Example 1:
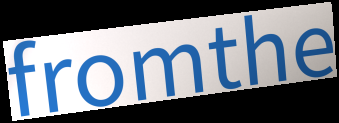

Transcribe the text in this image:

fromthe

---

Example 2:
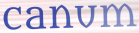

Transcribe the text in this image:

canum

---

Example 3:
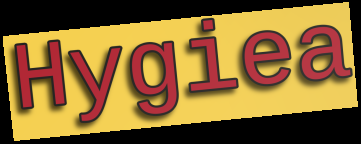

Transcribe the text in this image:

Hygiea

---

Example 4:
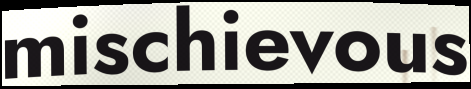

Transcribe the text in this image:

mischievous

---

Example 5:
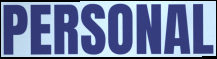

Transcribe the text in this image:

PERSONAL